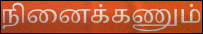
நினைக்கணும்